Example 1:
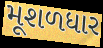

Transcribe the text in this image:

મૂશળધાર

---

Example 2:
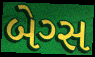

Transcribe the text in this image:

બેગ્સ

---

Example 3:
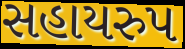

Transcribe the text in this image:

સહાયરુપ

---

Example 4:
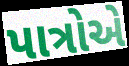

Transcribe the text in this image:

પાત્રોએ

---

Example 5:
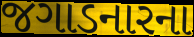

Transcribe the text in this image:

જગાડનારના